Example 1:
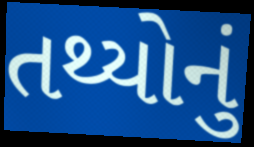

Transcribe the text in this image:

તથ્યોનું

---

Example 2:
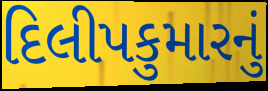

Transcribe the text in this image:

દિલીપકુમારનું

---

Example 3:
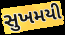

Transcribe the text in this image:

સુખમયી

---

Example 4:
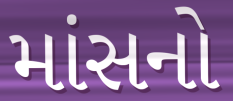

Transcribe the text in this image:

માંસનો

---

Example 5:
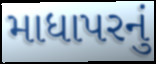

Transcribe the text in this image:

માધાપરનું